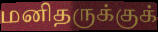
மனிதருக்குக்